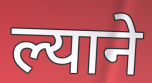
ल्याने